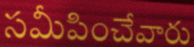
సమీపించేవారు